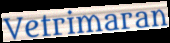
Vetrimaran